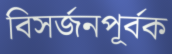
বিসর্জনপূর্বক